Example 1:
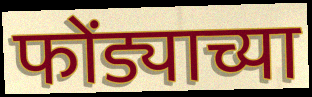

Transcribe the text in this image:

फोंड्याच्या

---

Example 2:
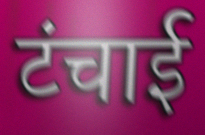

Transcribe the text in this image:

टंचाई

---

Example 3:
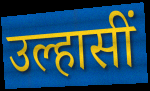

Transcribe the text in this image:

उल्हासीं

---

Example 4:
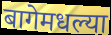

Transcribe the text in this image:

बागेमधल्या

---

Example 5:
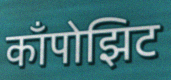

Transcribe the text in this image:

काँपोझिट